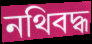
নথিবদ্ধ